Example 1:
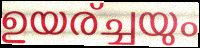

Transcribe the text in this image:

ഉയര്ച്ചയും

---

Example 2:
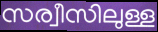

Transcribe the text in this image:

സര്വീസിലുള്ള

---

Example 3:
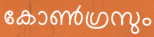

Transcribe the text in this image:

കോൺഗ്രസും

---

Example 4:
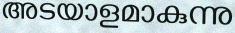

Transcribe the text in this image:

അടയാളമാകുന്നു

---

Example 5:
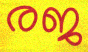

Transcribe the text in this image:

രജ